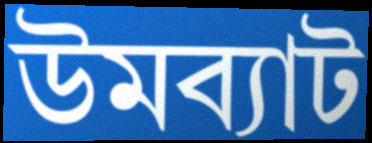
উমব্যাট